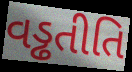
વડ્ઢતીતિ